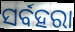
ସର୍ବହରା